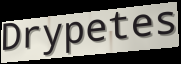
Drypetes